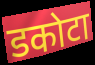
डकोटा